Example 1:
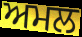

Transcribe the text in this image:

ਅਮਲ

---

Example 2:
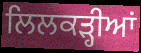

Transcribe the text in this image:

ਲਿਲਕੜ੍ਹੀਆਂ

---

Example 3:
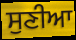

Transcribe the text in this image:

ਸੁਣੀਆ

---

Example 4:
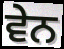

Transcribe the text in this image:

ਵੇਨ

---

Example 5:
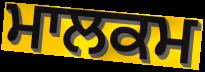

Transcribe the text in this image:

ਮਾਲਕਮ